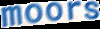
moors